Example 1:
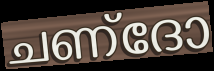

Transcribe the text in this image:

ചണ്ദോ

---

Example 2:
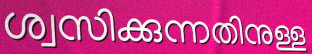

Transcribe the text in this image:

ശ്വസിക്കുന്നതിനുള്ള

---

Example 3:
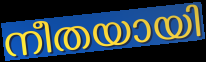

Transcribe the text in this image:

നീതയായി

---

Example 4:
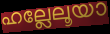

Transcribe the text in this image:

ഹല്ലേലൂയാ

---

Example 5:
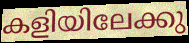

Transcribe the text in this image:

കളിയിലേക്കു